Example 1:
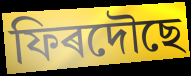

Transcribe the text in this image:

ফিৰদৌছে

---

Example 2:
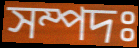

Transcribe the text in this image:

সম্পদঃ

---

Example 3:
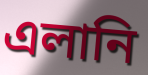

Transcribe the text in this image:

এলানি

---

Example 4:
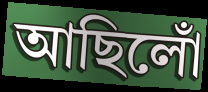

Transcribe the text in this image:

আছিলোঁ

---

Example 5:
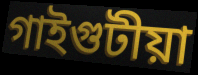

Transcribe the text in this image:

গাইগুটীয়া